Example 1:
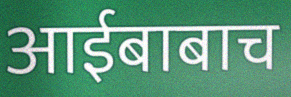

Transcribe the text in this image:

आईबाबाच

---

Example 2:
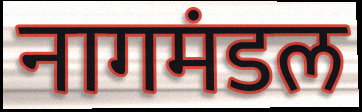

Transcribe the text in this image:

नागमंडल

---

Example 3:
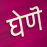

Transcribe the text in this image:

घेणॆ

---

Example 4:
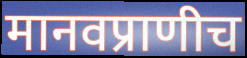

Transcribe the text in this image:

मानवप्राणीच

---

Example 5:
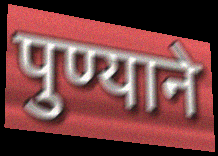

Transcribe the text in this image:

पुण्याने